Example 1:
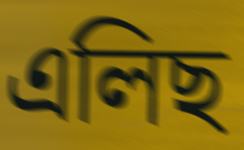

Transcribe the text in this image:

এলিছ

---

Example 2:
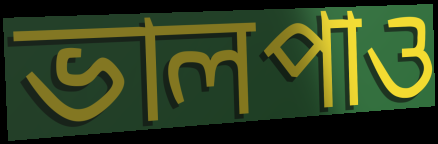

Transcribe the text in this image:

ভালপাও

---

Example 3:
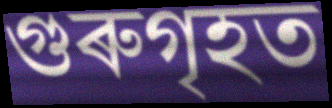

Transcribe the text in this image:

গুৰুগৃহত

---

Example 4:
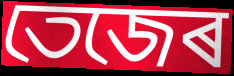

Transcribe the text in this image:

তেজেৰ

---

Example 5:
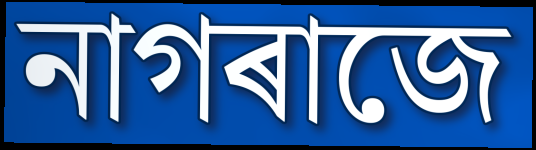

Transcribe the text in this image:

নাগৰাজে